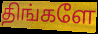
திங்களே